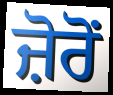
ਜ਼ੋਰੋਂ